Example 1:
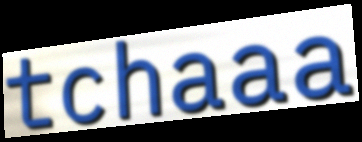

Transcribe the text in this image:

tchaaa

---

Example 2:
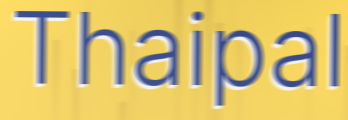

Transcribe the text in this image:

Thaipal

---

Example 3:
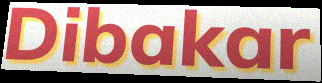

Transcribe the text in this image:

Dibakar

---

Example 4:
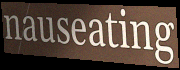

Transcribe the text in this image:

nauseating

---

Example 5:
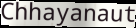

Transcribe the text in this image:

Chhayanaut